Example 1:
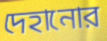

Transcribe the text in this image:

দেহানোর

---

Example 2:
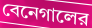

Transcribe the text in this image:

বেনেগালের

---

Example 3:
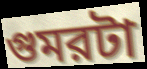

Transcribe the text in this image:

গুমরটা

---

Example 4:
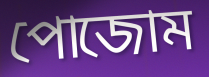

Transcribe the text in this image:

পোজোম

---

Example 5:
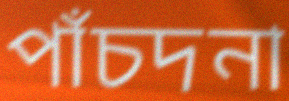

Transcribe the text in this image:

পাঁচদনা